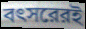
বৎসরেরই